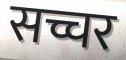
सच्चर